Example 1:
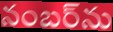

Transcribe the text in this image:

నంబర్‌ను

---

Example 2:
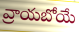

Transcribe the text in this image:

వ్రాయబోయే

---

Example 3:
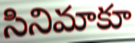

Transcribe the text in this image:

సినిమాకూ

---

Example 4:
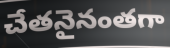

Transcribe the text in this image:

చేతనైనంతగా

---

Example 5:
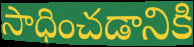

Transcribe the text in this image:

సాధించడానికి